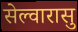
सेल्वारासु